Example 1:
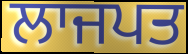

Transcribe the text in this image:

ਲਾਜਪਤ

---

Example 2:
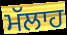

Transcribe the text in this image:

ਮੱਲਾਹ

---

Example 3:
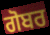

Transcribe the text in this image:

ਗੋਬਰ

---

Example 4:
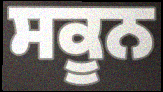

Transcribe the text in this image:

ਸਕੂਨ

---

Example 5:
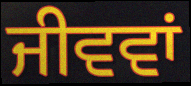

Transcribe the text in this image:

ਜੀਵਵਾਂ